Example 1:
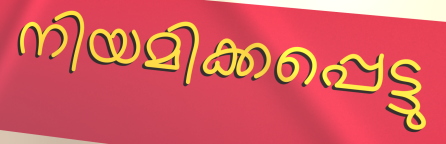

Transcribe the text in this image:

നിയമിക്കപ്പെട്ടു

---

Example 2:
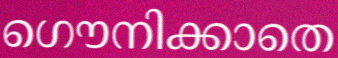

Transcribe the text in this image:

ഗൌനിക്കാതെ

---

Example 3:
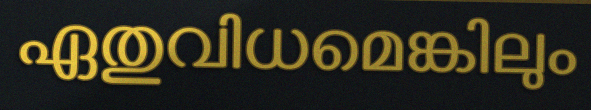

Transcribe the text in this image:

ഏതുവിധമെങ്കിലും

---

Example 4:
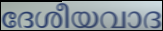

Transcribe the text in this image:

ദേശീയവാദ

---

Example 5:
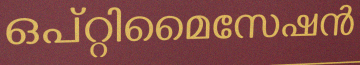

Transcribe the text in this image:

ഒപ്റ്റിമൈസേഷൻ